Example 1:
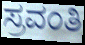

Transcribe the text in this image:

ಸ್ರವಂತಿ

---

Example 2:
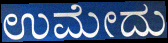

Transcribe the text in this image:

ಉಮೇದು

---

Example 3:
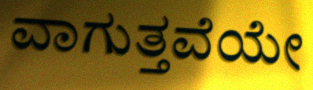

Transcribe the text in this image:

ವಾಗುತ್ತವೆಯೇ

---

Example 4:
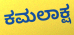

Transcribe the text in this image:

ಕಮಲಾಕ್ಷ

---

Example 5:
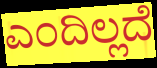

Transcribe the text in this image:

ಎಂದಿಲ್ಲದೆ